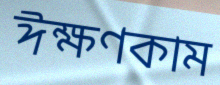
ঈক্ষণকাম